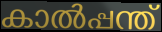
കാൽപ്പന്ത്